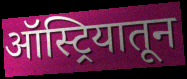
ऑस्ट्रियातून